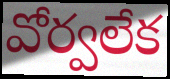
వోర్వలేక